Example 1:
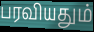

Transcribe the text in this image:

பரவியதும்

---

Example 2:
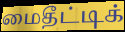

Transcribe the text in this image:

மைதீட்டிக்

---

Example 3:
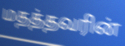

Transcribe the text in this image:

மதத்தவரின்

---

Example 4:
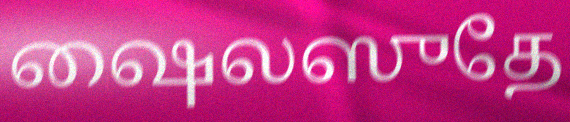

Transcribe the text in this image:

ஷைலஸுதே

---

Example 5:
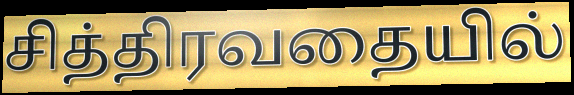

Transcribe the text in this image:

சித்திரவதையில்